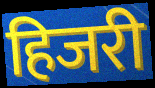
हिजरी